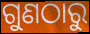
ଗୁଣଠାରୁ